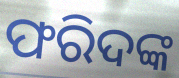
ଫରିଦଙ୍କ